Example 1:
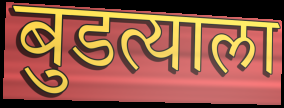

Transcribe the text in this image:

बुडत्याला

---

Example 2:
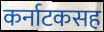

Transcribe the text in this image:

कर्नाटकसह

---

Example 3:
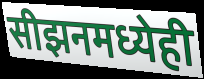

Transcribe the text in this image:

सीझनमध्येही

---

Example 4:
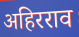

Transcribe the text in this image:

अहिरराव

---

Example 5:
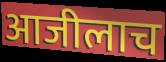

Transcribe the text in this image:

आजीलाच